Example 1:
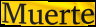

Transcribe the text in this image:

Muerte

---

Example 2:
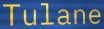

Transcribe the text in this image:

Tulane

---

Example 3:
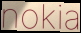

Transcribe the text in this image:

nokia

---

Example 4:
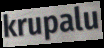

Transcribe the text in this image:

krupalu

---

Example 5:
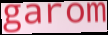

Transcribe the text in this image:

garom